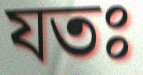
যতঃ